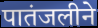
पातंजलीने